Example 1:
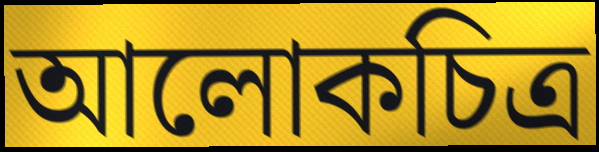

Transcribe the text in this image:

আলোকচিত্র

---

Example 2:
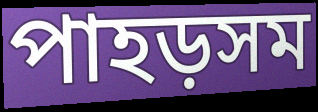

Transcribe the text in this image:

পাহড়সম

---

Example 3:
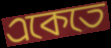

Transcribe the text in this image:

একেতে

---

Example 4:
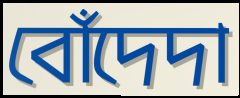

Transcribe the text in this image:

বোঁদেদা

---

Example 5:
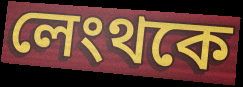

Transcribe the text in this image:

লেংথকে